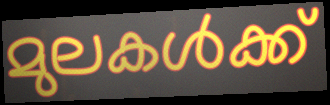
മുലകൾക്ക്